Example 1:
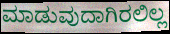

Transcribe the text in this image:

ಮಾಡುವುದಾಗಿರಲಿಲ್ಲ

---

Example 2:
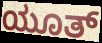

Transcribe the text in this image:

ಯೂತ್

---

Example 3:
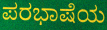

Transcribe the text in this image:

ಪರಭಾಷೆಯ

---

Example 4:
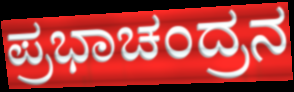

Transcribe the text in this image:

ಪ್ರಭಾಚಂದ್ರನ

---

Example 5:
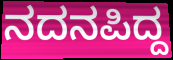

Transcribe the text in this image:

ನದನಪಿದ್ದ